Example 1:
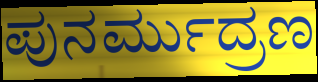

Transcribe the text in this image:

ಪುನರ್ಮುದ್ರಣ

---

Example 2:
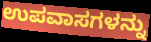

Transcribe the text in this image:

ಉಪವಾಸಗಳನ್ನು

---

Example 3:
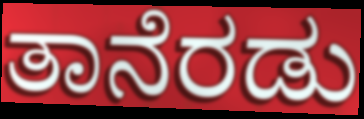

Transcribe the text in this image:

ತಾನೆರಡು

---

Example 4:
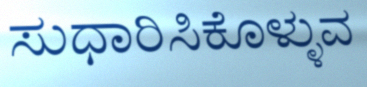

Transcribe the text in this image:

ಸುಧಾರಿಸಿಕೊಳ್ಳುವ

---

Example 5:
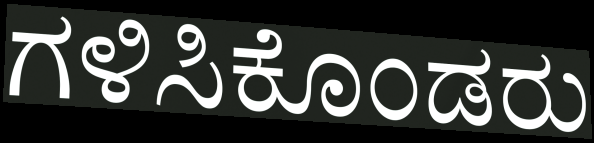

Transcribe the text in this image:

ಗಳಿಸಿಕೊಂಡರು